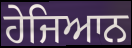
ਹੇਜਿਆਨ